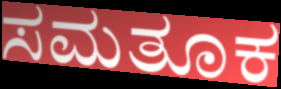
ಸಮತೂಕ